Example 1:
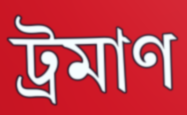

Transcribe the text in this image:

ট্রমাণ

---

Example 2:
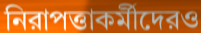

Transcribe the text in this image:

নিরাপত্তাকর্মীদেরও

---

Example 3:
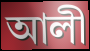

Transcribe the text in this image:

আলী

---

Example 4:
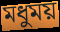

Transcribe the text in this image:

মধুময়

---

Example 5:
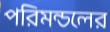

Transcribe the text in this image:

পরিমন্ডলের